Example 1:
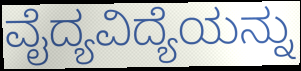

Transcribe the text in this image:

ವೈದ್ಯವಿದ್ಯೆಯನ್ನು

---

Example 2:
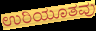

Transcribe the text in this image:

ಉರಿಯೂತವು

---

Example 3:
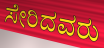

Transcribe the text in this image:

ಸೇರಿದವರು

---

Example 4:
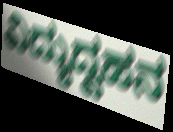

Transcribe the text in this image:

ವಿದ್ಯುದ್ವಹನ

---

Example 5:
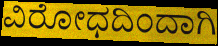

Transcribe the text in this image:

ವಿರೋಧದಿಂದಾಗಿ